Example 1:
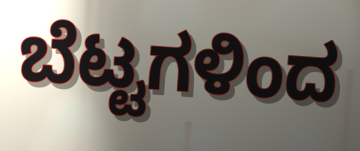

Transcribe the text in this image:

ಬೆಟ್ಟಗಳಿಂದ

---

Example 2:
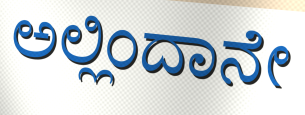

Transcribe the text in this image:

ಅಲ್ಲಿಂದಾನೇ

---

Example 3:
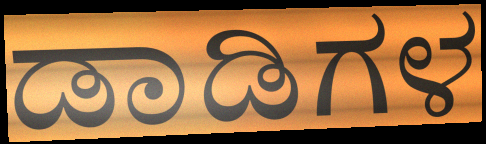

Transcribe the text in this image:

ಡಾಡಿಗಳ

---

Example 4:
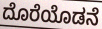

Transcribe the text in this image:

ದೊರೆಯೊಡನೆ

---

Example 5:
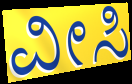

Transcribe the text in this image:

ವೀಸಿ